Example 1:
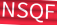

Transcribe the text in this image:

NSQF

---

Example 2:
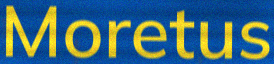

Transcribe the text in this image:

Moretus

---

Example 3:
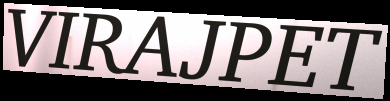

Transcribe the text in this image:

VIRAJPET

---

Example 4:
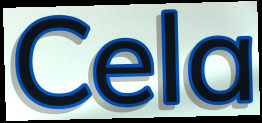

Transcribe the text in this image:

Cela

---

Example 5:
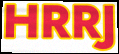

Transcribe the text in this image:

HRRJ